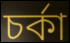
চর্কা